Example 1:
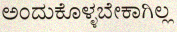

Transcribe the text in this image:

ಅಂದುಕೊಳ್ಳಬೇಕಾಗಿಲ್ಲ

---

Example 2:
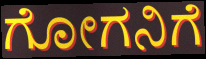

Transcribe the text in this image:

ಗೋಗನಿಗೆ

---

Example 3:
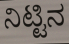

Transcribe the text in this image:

ನಿಟ್ಟಿನ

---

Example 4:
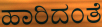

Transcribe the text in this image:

ಹಾರಿದಂತೆ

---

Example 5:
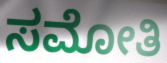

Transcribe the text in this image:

ಸಮೋತಿ